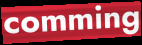
comming